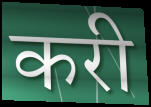
करी